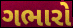
ગભારો